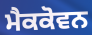
ਮੈਕਕੋਵਨ